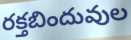
రక్తబిందువుల